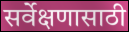
सर्वेक्षणासाठी